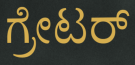
ಗ್ರೇಟರ್